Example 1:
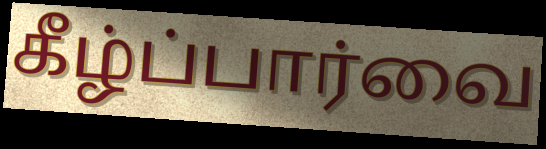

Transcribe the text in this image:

கீழ்ப்பார்வை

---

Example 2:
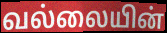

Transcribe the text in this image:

வல்லையின்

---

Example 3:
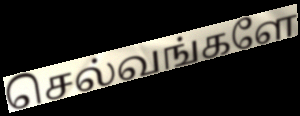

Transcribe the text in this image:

செல்வங்களே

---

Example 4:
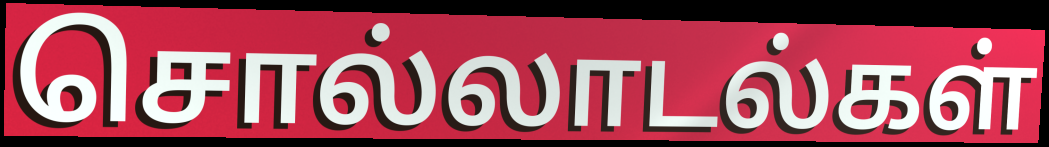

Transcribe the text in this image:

சொல்லாடல்கள்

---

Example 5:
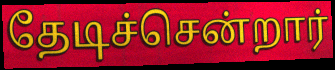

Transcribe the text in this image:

தேடிச்சென்றார்